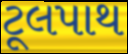
ટૂલપાથ